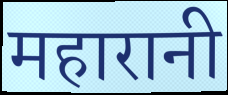
महारानी